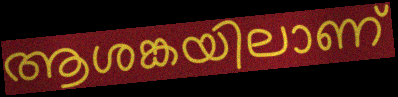
ആശങ്കയിലാണ്